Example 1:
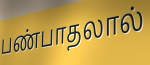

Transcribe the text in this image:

பண்பாதலால்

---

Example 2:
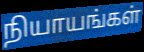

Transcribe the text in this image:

நியாயங்கள்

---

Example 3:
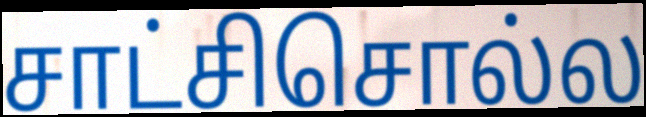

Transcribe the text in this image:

சாட்சிசொல்ல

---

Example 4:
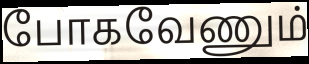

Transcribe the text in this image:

போகவேணும்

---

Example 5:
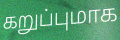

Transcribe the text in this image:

கறுப்புமாக